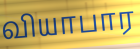
வியாபார